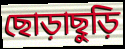
ছোড়াছুড়ি